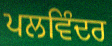
ਪਲਵਿੰਦਰ